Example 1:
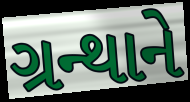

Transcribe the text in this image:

ગ્રન્થાને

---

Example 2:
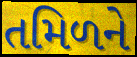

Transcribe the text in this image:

તમિળને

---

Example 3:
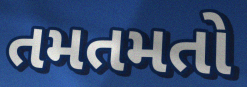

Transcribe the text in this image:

તમતમતો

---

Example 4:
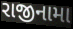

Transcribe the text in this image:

રાજીનામા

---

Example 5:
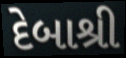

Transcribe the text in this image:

દેબાશ્રી